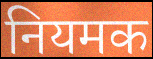
नियमक